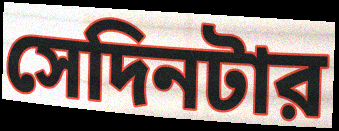
সেদিনটার